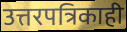
उत्तरपत्रिकाही